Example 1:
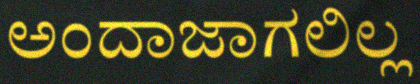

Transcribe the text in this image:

ಅಂದಾಜಾಗಲಿಲ್ಲ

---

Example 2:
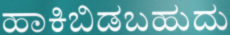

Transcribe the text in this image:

ಹಾಕಿಬಿಡಬಹುದು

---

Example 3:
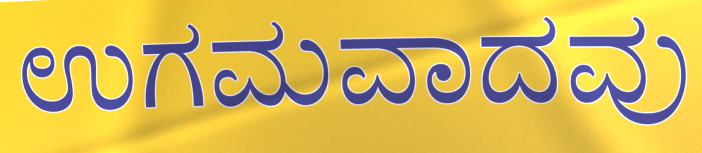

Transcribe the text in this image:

ಉಗಮವಾದವು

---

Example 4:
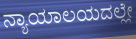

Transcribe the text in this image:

ನ್ಯಾಯಾಲಯದಲ್ಲೇ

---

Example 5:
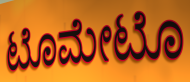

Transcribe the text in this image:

ಟೊಮೇಟೊ